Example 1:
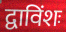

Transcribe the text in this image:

द्वाविंशः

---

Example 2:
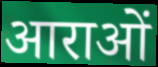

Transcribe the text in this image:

आराओं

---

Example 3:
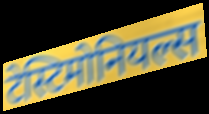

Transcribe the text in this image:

टेस्टिमोनियल्स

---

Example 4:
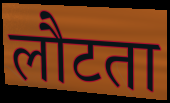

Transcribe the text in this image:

लौटता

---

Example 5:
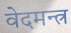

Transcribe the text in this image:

वेदमन्त्र